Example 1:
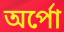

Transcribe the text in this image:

অর্পো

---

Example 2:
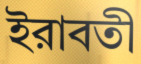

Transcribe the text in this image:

ইরাবতী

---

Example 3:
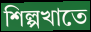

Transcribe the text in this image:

শিল্পখাতে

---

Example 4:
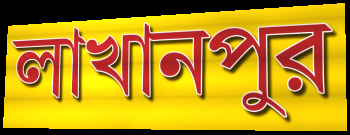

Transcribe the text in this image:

লাখানপুর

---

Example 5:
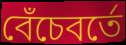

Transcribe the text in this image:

বেঁচেবর্তে